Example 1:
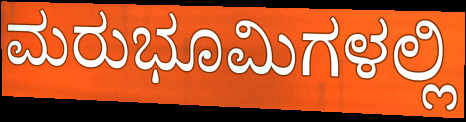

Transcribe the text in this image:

ಮರುಭೂಮಿಗಳಲ್ಲಿ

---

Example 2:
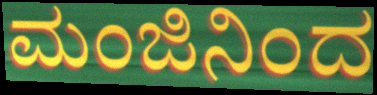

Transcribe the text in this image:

ಮಂಜಿನಿಂದ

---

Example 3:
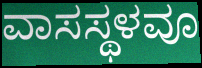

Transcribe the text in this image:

ವಾಸಸ್ಥಳವೂ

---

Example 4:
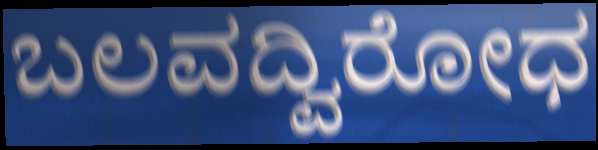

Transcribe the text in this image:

ಬಲವದ್ವಿರೋಧ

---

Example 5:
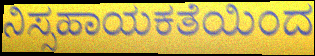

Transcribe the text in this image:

ನಿಸ್ಸಹಾಯಕತೆಯಿಂದ